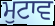
ਮੁਟਾਵ